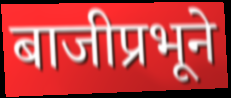
बाजीप्रभूने